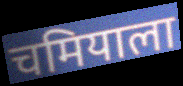
चमियाला